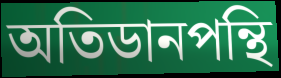
অতিডানপন্থি